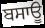
ਬਸਾਊ